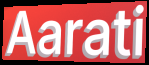
Aarati